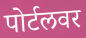
पोर्टलवर